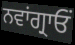
ਨਵਾਂਗ੍ਰਾਓਂ